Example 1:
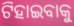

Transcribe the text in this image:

ଟିହାଇବାକୁ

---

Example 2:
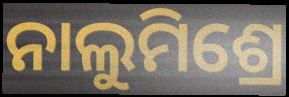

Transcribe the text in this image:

ନାଲୁମିଶ୍ରେ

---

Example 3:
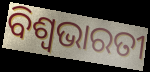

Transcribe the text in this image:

ବିଶ୍ୱଭାରତୀ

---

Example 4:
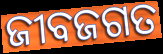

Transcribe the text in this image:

ଜୀବଜଗତ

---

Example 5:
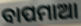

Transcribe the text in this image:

ବାପମାଆ